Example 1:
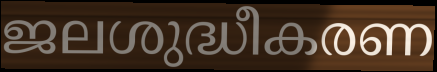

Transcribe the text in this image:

ജലശുദ്ധീകരണ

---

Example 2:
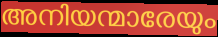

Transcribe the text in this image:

അനിയന്മാരേയും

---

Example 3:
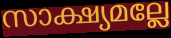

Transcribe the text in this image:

സാക്ഷ്യമല്ലേ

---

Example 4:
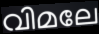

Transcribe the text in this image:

വിമലേ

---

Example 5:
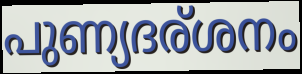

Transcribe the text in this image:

പുണ്യദര്ശനം